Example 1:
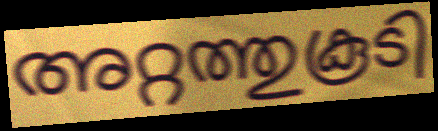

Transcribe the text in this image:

അറ്റത്തുകൂടി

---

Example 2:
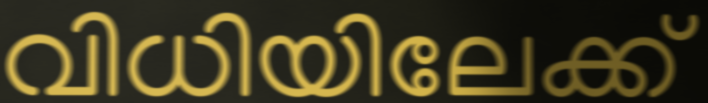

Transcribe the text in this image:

വിധിയിലേക്ക്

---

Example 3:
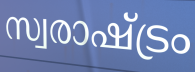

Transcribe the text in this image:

സ്വരാഷ്ട്രം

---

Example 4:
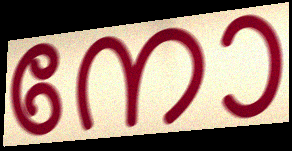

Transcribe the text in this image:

നോ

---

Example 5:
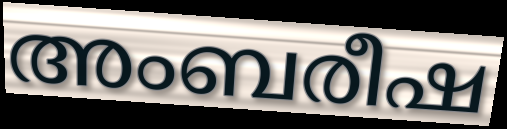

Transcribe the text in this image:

അംബരീഷ